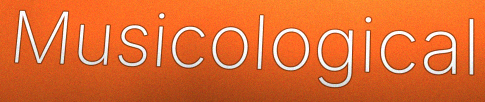
Musicological